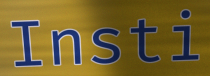
Insti